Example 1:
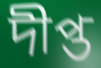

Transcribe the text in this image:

দীপ্ত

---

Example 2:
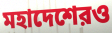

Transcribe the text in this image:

মহাদেশেরও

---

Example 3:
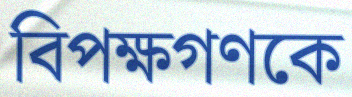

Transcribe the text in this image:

বিপক্ষগণকে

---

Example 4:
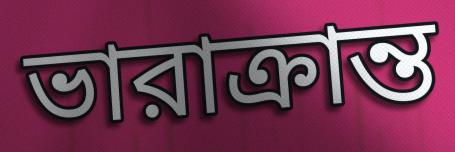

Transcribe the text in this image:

ভারাক্রান্ত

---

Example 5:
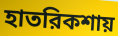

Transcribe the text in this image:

হাতরিকশায়